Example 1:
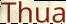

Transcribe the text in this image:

Thua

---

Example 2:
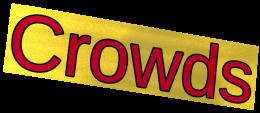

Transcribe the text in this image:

Crowds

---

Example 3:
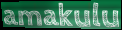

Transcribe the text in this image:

amakulu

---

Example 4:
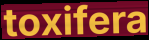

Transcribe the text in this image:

toxifera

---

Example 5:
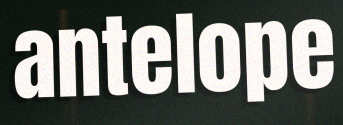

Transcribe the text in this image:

antelope